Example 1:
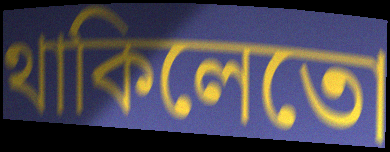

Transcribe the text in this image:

থাকিলেতো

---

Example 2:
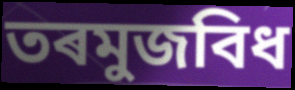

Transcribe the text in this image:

তৰমুজবিধ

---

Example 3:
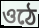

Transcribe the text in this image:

ওঠে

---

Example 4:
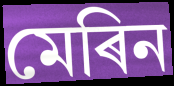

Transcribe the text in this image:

মেৰিন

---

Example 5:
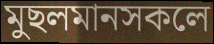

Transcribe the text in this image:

মুছলমানসকলে